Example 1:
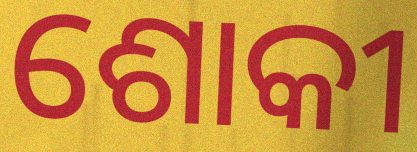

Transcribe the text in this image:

ଶୋକୀ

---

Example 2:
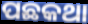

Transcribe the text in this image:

ପଛକଥା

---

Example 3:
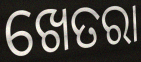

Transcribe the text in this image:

ଖେତରା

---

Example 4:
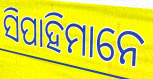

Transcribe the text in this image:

ସିପାହିମାନେ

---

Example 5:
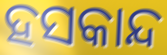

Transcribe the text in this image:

ହସକାନ୍ଦ